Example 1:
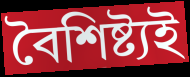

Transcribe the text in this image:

বৈশিষ্ট্যই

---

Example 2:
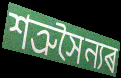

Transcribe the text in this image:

শত্ৰুসৈন্যৰ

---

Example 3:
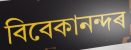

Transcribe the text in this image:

বিবেকানন্দৰ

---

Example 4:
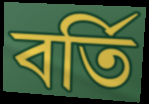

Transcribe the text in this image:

বৰ্তি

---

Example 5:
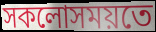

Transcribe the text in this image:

সকলোসময়তে